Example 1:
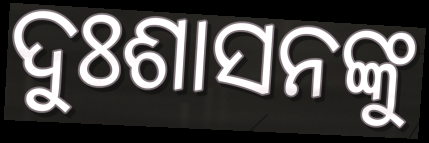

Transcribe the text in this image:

ଦୁଃଶାସନଙ୍କୁ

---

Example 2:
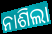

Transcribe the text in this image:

ନାଶିଲା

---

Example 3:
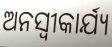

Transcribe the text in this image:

ଅନସ୍ବୀକାର୍ଯ୍ୟ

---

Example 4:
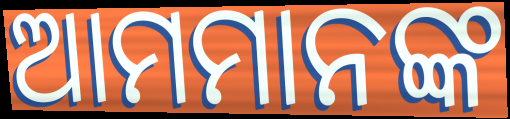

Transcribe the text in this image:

ଆମମାନଙ୍କ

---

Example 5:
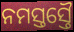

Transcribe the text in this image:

ନମସ୍ତସ୍ତୈ